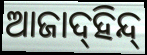
ଆଜାଦ୍‍ହିନ୍ଦ୍